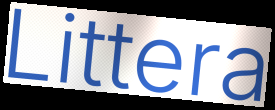
Littera